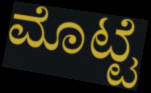
ಮೊಟ್ಟೆ